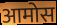
आमोस